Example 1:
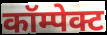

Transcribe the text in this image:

कॉम्पेक्ट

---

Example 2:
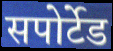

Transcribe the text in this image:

सपोर्टेड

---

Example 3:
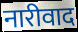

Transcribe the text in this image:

नारीवाद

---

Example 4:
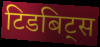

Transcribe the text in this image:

टिडबिट्स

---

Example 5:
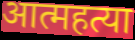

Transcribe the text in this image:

आत्महत्या